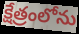
క్షేత్రంలోను